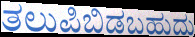
ತಲುಪಿಬಿಡಬಹುದು